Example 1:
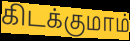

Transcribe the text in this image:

கிடக்குமாம்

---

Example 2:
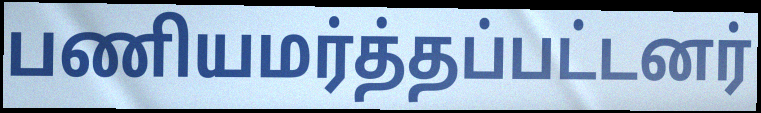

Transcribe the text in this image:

பணியமர்த்தப்பட்டனர்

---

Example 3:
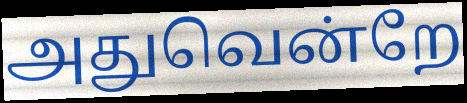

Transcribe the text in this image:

அதுவென்றே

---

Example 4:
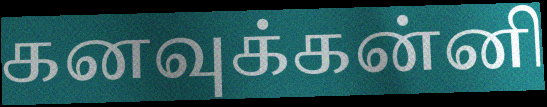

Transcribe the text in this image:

கனவுக்கன்னி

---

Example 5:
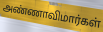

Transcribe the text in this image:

அண்ணாவிமார்கள்